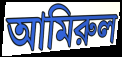
আমিরুল